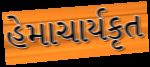
હેમાચાર્યકૃત